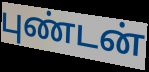
புண்டன்